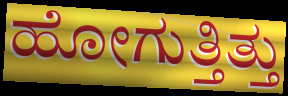
ಹೋಗುತ್ತಿತ್ತು